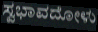
ಸ್ವಭಾವದೋಳು